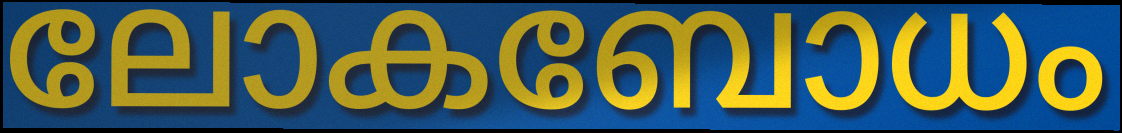
ലോകബോധം